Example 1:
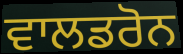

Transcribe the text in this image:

ਵਾਲਡਰੋਨ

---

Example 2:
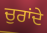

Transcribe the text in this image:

ਚੁਰਾਂਦੇ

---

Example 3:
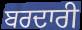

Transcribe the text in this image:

ਬਰਦਾਰੀ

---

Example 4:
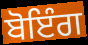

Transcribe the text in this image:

ਬੋਇੰਗ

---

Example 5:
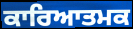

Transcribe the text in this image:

ਕਾਰਿਆਤਮਕ